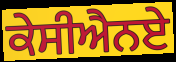
ਕੇਸੀਐਨਏ